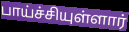
பாய்ச்சியுள்ளார்